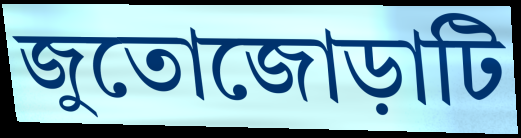
জুতোজোড়াটি